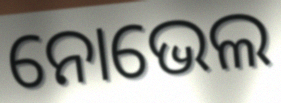
ନୋଭେଲ